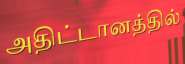
அதிட்டானத்தில்